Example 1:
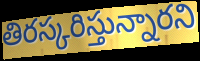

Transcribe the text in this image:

తిరస్కరిస్తున్నారని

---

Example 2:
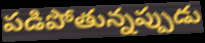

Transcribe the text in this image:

పడిపోతున్నప్పుడు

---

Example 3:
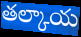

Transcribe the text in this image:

తల్కాయ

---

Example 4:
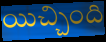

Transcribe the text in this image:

యిచ్చింది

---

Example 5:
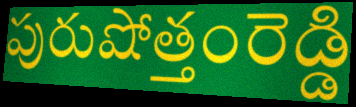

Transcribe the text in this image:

పురుషోత్తంరెడ్డి